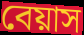
বেয়াস